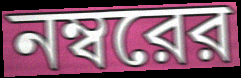
নম্বরের